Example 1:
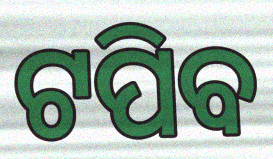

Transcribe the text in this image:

ଟପିବ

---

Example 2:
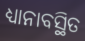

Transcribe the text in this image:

ଧ୍ୟାନାବସ୍ଥିତ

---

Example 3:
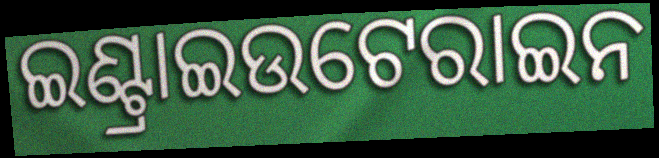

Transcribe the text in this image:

ଇଣ୍ଟ୍ରାଇଉଟେରାଇନ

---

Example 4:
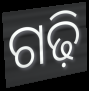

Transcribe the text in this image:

ଗଢ଼ି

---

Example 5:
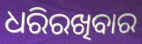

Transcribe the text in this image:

ଧରିରଖିବାର